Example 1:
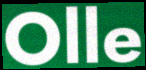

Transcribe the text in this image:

Olle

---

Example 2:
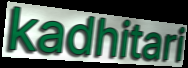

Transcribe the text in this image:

kadhitari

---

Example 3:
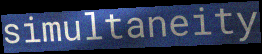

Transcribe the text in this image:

simultaneity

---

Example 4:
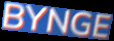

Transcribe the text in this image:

BYNGE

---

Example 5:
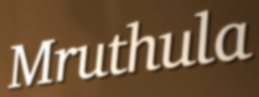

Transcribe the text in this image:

Mruthula